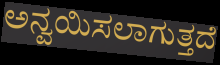
ಅನ್ವಯಿಸಲಾಗುತ್ತದೆ